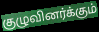
குழுவினர்க்கும்